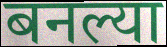
बनल्या